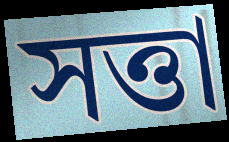
সত্তা